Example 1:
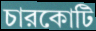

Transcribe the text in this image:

চারকোটি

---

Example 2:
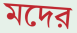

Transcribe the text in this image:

মদের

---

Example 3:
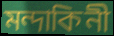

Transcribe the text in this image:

মন্দাকিনী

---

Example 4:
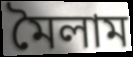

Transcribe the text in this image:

মৈলাম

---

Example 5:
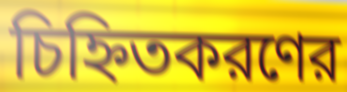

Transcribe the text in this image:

চিহ্নিতকরণের